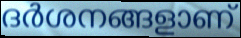
ദർശനങ്ങളാണ്